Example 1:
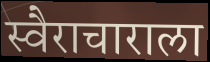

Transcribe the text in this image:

स्वैराचाराला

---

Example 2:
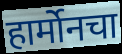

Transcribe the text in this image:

हार्मोनचा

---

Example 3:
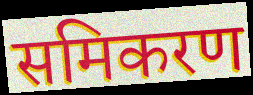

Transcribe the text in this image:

समिकरण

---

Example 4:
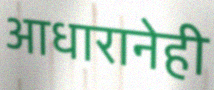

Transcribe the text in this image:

आधारानेही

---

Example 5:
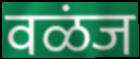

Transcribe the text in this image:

वळंज